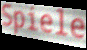
Spiele